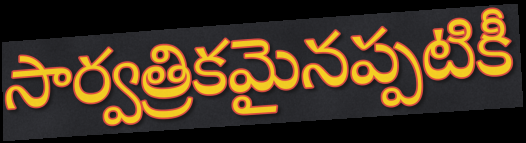
సార్వత్రికమైనప్పటికీ